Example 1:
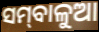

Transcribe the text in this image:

ସମ୍‌ବାଳୁଆ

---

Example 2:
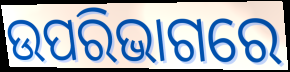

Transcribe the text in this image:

ଉପରିଭାଗରେ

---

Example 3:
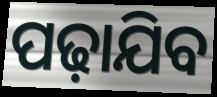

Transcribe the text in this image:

ପଢ଼ାଯିବ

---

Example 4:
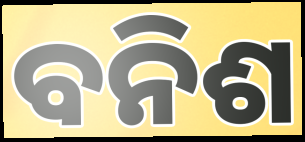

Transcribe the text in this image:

ବନିଶ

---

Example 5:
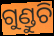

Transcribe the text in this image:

ଗୁଣ୍ଡୁଚି